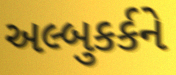
અલ્બુકર્કને